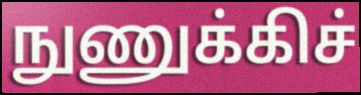
நுணுக்கிச்